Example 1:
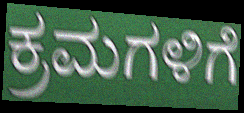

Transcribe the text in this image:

ಕ್ರಮಗಳಿಗೆ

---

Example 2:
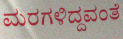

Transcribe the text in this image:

ಮರಗಳಿದ್ದವಂತೆ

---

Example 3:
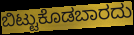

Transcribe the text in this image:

ಬಿಟ್ಟುಕೊಡಬಾರದು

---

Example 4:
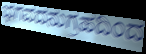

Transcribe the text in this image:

ಭಗವದನುಗ್ರಹದಿಂದ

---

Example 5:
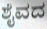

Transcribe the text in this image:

ಶೈವದ